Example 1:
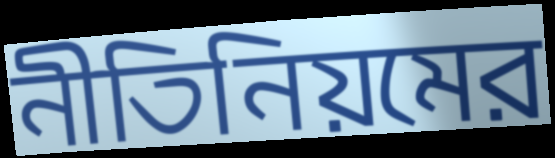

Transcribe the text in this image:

নীতিনিয়মের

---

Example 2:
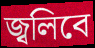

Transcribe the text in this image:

জ্বলিবে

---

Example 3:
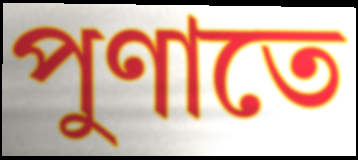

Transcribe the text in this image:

পুণাতে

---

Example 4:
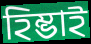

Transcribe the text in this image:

হিম্ভাই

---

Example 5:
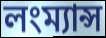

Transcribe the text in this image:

লংম্যান্স